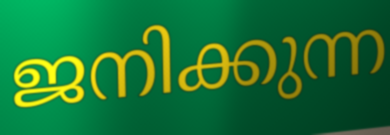
ജനിക്കുന്ന